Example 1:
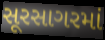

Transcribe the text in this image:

સૂરસાગરમાં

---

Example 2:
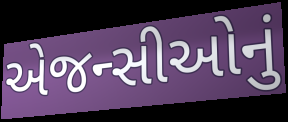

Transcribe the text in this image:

એજન્સીઓનું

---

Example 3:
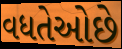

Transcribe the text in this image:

વધતેઓછે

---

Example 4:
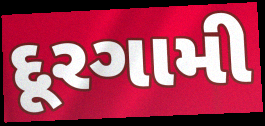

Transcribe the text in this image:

દૂરગામી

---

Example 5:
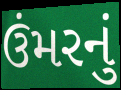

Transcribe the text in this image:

ઉંમરનું